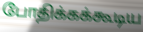
போதிக்கக்கூடிய